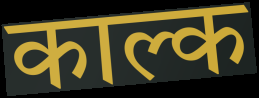
काल्क